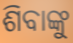
ଶିବାଙ୍କୁ